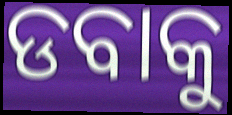
ଡବାକୁ